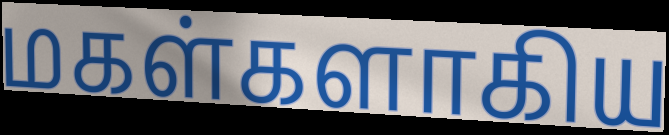
மகள்களாகிய